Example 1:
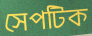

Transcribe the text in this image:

সেপটিক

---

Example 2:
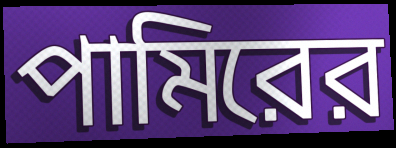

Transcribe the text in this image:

পামিরের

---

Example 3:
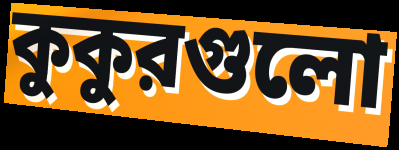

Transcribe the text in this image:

কুকুরগুলো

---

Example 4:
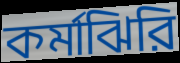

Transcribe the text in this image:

কর্মাঝিরি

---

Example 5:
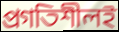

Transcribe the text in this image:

প্রগতিশীলই